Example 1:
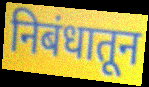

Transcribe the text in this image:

निबंधातून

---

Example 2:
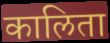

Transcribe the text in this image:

कालिता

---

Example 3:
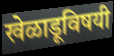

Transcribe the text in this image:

खेळाडूविषयी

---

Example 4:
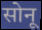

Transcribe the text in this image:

सोनू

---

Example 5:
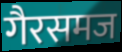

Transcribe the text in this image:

गैरसमज